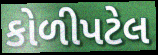
કોળીપટેલ